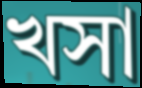
খসা